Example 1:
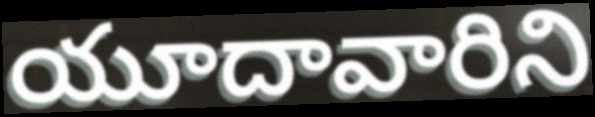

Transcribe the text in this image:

యూదావారిని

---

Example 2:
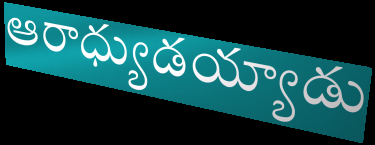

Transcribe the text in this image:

ఆరాధ్యుడయ్యాడు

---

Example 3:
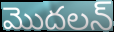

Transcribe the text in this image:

మొదలన్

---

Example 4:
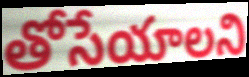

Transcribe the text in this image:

తోసేయాలని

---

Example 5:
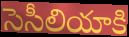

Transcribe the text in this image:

సెసీలియాకి